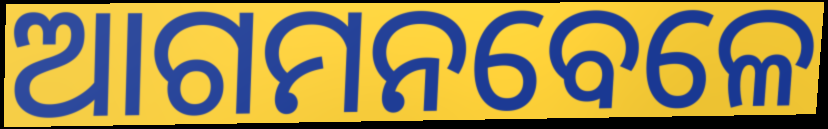
ଆଗମନବେଳେ